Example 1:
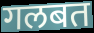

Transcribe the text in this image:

गलबत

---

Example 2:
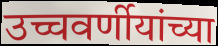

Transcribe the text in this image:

उच्चवर्णीयांच्या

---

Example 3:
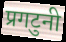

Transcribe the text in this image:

प्रगटुनी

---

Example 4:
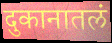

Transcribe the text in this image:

दुकानातलं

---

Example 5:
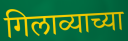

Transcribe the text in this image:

गिलाव्याच्या